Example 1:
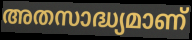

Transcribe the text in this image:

അതസാദ്ധ്യമാണ്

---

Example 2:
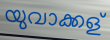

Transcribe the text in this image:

യുവാക്കള്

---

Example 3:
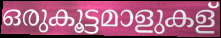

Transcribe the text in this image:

ഒരുകൂട്ടമാളുകള്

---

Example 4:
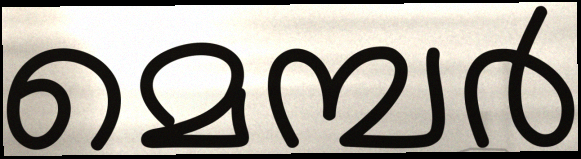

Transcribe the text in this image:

മെമ്പർ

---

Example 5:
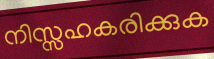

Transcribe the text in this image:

നിസ്സഹകരിക്കുക